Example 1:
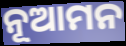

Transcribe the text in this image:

ନୂଆମନ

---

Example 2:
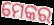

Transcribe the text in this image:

ମେକର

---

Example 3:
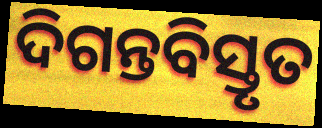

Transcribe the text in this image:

ଦିଗନ୍ତବିସ୍ତୃତ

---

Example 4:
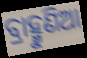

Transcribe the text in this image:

ବ୍ରାହ୍ମୁଣିଆ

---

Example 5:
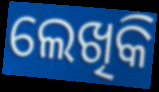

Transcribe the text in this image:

ଲେଖିକି